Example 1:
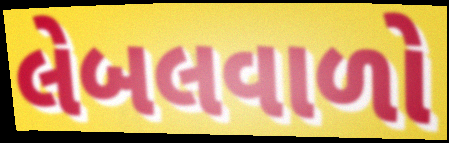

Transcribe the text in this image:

લેબલવાળો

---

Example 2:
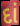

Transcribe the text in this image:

દાં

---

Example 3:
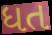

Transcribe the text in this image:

ધત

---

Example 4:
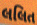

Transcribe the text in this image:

લલિત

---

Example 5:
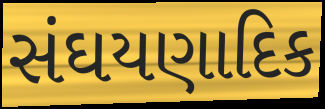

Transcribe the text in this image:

સંઘયણાદિક